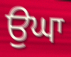
ਉਘਾ